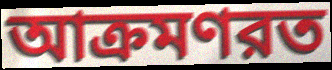
আক্রমণরত